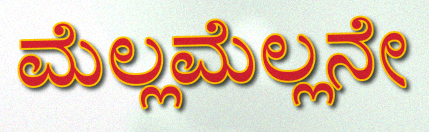
ಮೆಲ್ಲಮೆಲ್ಲನೇ